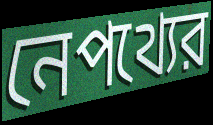
নেপথ্যের